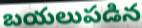
బయలుపడిన